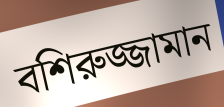
বশিরুজ্জামান